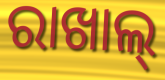
ରାଖାଲ୍